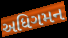
અધિગમન